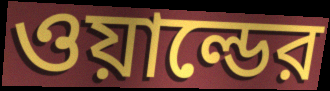
ওয়াল্ডের